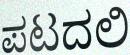
ಪಟದಲಿ